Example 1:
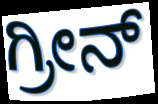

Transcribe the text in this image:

ಗ್ರೀನ್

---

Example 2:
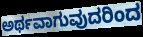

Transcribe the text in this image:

ಅರ್ಥವಾಗುವುದರಿಂದ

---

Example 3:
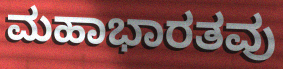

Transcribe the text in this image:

ಮಹಾಭಾರತವು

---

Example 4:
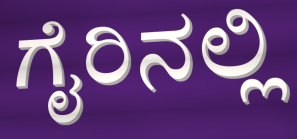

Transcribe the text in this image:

ಗೈರಿನಲ್ಲಿ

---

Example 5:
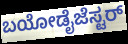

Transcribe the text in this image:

ಬಯೋಡೈಜೆಸ್ಟರ್